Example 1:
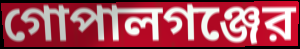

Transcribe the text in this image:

গোপালগঞ্জের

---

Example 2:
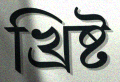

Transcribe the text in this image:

খ্রিষ্ট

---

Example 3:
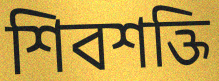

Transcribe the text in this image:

শিবশক্তি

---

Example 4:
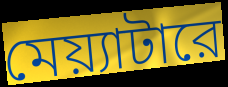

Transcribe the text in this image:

মেয়্যাটারে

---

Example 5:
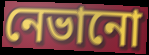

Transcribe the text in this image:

নেভানো